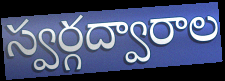
స్వర్గద్వారాల